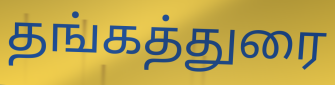
தங்கத்துரை